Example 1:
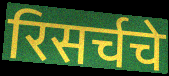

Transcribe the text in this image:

रिसर्चचे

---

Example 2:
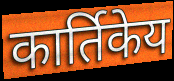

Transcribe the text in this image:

कार्तिकेय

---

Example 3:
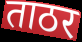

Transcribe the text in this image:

ताठर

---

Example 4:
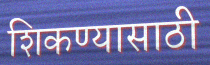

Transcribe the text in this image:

शिकण्यासाठी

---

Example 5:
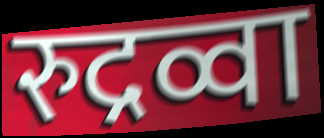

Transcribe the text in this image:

रुद्रव्वा